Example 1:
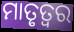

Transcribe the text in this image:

ମାତୃତ୍ୱର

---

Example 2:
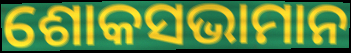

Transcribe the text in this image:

ଶୋକସଭାମାନ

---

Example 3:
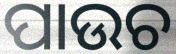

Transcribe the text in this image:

ପାଉଚ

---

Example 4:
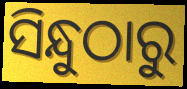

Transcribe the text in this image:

ସିନ୍ଧୁଠାରୁ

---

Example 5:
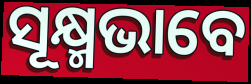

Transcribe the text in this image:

ସୂକ୍ଷ୍ମଭାବେ